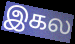
இகல